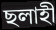
ছলাহী